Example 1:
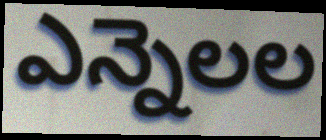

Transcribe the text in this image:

ఎన్నెలల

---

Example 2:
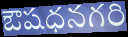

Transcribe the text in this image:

ఔషధనగరి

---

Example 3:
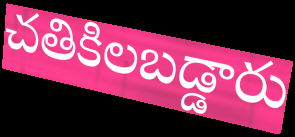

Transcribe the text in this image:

చతికిలబడ్డారు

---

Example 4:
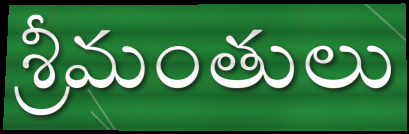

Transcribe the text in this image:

శ్రీమంతులు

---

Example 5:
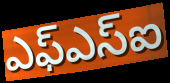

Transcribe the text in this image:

ఎఫ్ఎస్ఐ